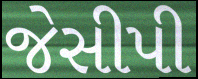
જેસીપી